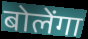
बोलेंगा